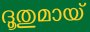
ദൂതുമായ്